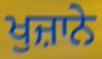
ਖੁਜ਼ਾਨੇ